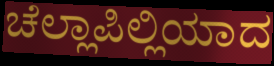
ಚೆಲ್ಲಾಪಿಲ್ಲಿಯಾದ